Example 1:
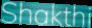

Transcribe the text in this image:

Shakthi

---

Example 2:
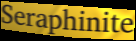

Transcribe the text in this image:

Seraphinite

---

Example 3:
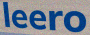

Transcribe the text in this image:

leero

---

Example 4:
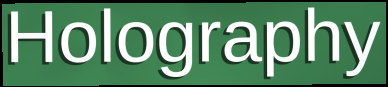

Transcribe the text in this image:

Holography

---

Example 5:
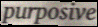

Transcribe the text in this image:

purposive